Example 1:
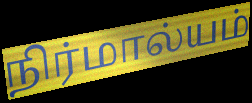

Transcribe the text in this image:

நிர்மால்யம்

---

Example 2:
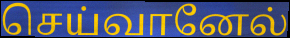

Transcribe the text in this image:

செய்வானேல்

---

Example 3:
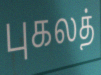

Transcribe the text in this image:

புகலத்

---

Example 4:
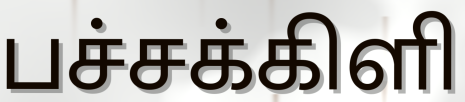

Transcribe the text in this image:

பச்சக்கிளி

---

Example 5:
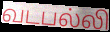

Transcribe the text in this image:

வடபல்லி